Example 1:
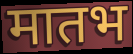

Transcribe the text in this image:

मातभ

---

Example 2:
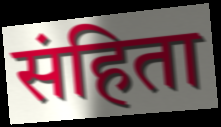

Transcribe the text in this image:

संहिता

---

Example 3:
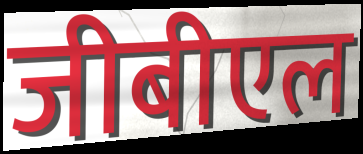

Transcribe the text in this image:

जीबीएल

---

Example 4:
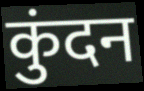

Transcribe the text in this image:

कुंदन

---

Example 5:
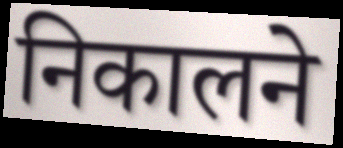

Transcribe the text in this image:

निकालने